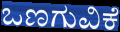
ಒಣಗುವಿಕೆ